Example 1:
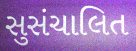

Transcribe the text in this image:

સુસંચાલિત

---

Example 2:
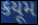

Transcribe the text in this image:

કયૂમ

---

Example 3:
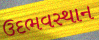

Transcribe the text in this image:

ઉદભવસ્થાન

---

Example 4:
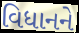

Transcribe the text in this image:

વિધાનને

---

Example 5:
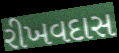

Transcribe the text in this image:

રીખવદાસ